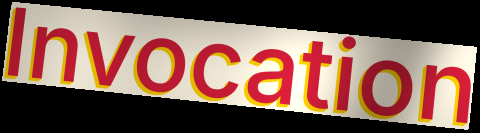
Invocation